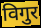
विगुर